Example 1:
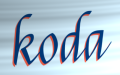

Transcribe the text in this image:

koda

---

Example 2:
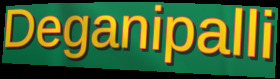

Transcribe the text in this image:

Deganipalli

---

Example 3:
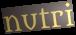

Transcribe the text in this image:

nutri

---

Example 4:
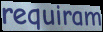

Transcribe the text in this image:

requiram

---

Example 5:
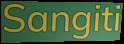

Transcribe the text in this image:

Sangiti